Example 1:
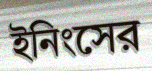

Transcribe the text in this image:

ইনিংসের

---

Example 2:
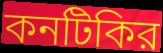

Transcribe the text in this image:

কনটিকির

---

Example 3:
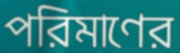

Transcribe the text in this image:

পরিমাণের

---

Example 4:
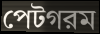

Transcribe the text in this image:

পেটগরম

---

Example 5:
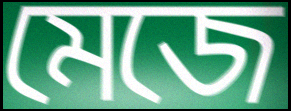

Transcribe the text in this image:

মেজে